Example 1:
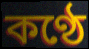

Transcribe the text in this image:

কণ্ঠে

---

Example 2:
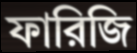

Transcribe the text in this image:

ফারিজি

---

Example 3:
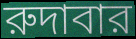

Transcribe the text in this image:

রুদাবার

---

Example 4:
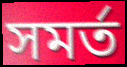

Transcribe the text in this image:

সমর্ত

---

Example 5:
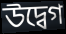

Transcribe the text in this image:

উদ্বেগ